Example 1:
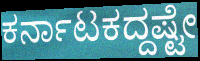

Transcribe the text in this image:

ಕರ್ನಾಟಕದ್ದಷ್ಟೇ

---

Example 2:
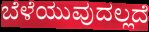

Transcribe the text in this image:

ಬೆಳೆಯುವುದಲ್ಲದೆ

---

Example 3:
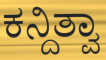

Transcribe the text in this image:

ಕನ್ದಿತ್ವಾ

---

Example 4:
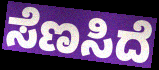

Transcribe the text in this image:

ಸೆಣಸಿದೆ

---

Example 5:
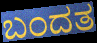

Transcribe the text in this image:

ಬಂದತ